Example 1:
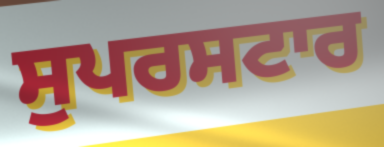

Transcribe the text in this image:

ਸੁਪਰਸਟਾਰ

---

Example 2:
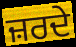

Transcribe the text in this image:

ਜ਼ਰਦੇ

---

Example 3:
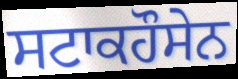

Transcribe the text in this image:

ਸਟਾਕਹੌਸੇਨ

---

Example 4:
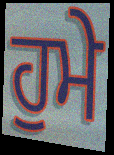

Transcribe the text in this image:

ਹੁਮੇ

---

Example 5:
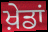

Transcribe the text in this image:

ਖ਼ੇਡਾਂ